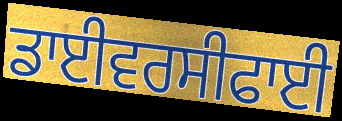
ਡਾਈਵਰਸੀਫਾਈ